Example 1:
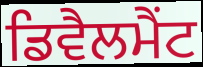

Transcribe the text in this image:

ਡਿਵੈਲਮੈਂਟ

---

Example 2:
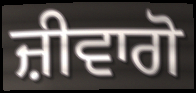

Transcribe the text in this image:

ਜ਼ੀਵਾਗੋ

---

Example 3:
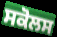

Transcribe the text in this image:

ਸਕੋਲਸ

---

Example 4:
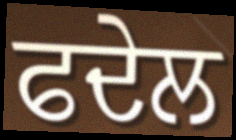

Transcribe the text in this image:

ਫਦੇਲ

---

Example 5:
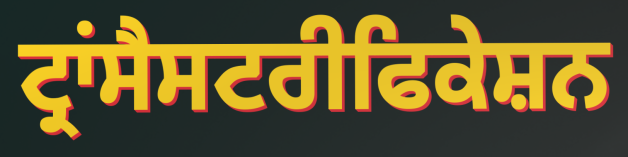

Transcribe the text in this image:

ਟ੍ਰਾਂਸੈਸਟਰੀਫਿਕੇਸ਼ਨ